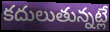
కదులుతున్నట్లే